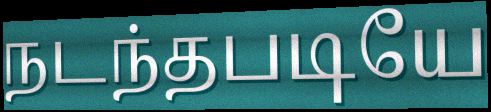
நடந்தபடியே